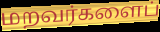
மறவர்களைப்